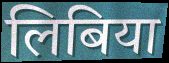
लिबिया